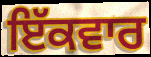
ਇੱਕਵਾਰ